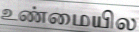
உண்மையில